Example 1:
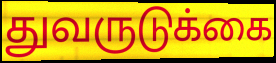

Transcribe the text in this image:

துவருடுக்கை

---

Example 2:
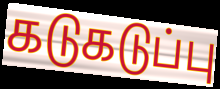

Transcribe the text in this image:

கடுகடுப்பு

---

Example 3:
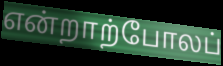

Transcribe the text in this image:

என்றாற்போலப்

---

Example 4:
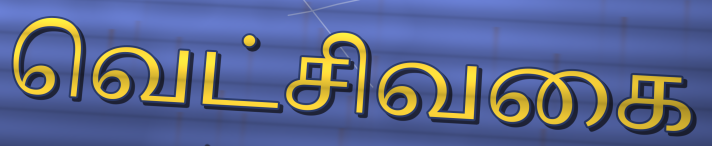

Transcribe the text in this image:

வெட்சிவகை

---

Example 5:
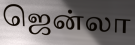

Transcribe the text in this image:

ஜென்லா